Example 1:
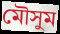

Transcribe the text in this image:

মৌসুম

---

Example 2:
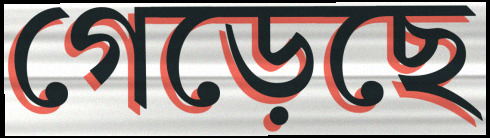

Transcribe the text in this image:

গেড়েছে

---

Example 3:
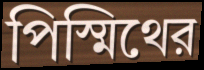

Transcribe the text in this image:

পিস্মিথের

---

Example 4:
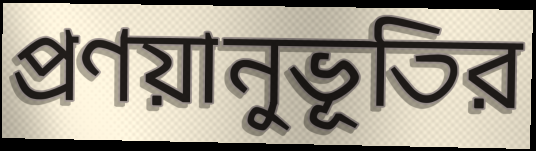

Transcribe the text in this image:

প্রণয়ানুভূতির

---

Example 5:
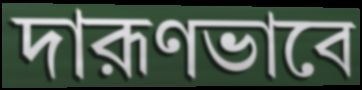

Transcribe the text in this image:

দারূণভাবে